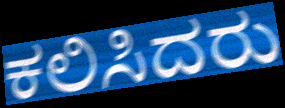
ಕಲಿಸಿದರು